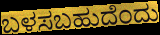
ಬಳಸಬಹುದೆಂದು